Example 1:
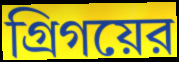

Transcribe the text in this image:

গ্রিগয়ের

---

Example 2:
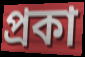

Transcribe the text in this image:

প্রকা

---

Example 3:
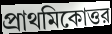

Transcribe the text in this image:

প্রাথমিকোত্তর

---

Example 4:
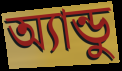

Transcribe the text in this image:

অ্যান্ডু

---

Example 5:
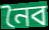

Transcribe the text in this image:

নৈব